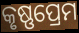
କୃଷ୍ଣପ୍ରେମ